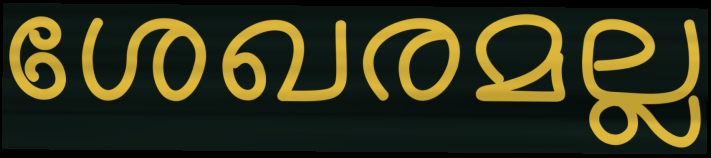
ശേഖരമല്ല